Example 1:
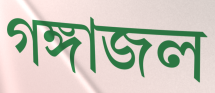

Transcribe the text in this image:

গঙ্গাজল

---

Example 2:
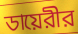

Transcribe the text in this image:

ডায়েরীর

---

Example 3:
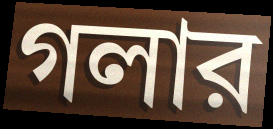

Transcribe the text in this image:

গলার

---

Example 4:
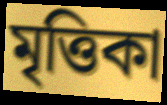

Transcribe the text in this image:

মৃত্তিকা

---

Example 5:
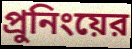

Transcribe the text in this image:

প্রুনিংয়ের